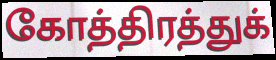
கோத்திரத்துக்